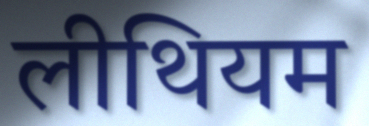
लीथियम